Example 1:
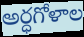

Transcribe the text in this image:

అర్ధగోళాల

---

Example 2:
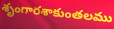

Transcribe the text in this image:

శృంగారశాకుంతలము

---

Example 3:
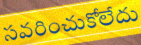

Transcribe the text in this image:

సవరించుకోలేదు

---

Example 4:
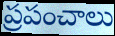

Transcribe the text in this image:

ప్రపంచాలు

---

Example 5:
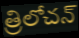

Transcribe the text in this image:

త్రిలోచన్